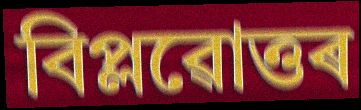
বিপ্লৱোত্তৰ